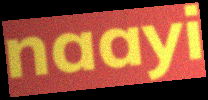
naayi